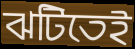
ঝটিতেই